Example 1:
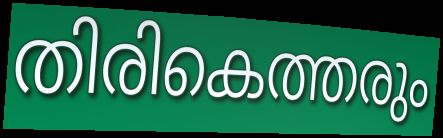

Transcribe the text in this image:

തിരികെത്തരും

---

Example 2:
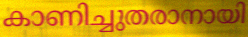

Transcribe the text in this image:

കാണിച്ചുതരാനായി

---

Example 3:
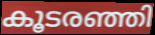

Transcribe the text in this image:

കൂടരഞ്ഞി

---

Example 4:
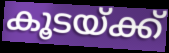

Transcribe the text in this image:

കൂടയ്ക്ക്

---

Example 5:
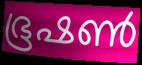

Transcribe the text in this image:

ഭൂഷൺ